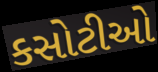
કસોટીઓ